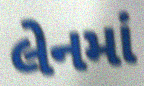
લેનમાં